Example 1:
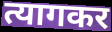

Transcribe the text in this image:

त्यागकर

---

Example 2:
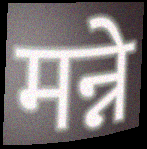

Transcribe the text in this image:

मन्ने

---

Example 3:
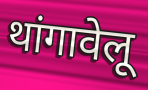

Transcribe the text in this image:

थांगावेलू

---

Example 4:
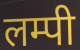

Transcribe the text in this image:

लम्पी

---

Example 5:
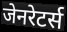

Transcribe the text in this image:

जेनरेटर्स